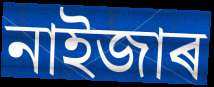
নাইজাৰ